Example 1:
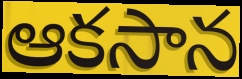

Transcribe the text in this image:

ఆకసాన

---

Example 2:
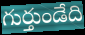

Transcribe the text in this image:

గుర్తుండేది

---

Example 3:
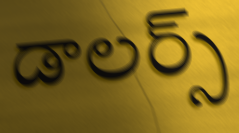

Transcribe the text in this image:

డాలర్స్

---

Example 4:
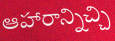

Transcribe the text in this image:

ఆహారాన్నిచ్చి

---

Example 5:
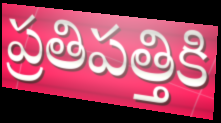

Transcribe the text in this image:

ప్రతిపత్తికి